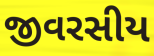
જીવરસીય